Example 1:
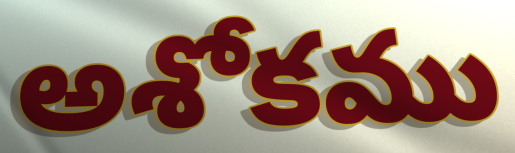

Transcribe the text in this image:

అశోకము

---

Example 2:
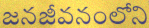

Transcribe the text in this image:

జనజీవనంలోని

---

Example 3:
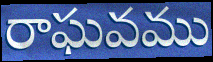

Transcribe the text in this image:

రాఘవము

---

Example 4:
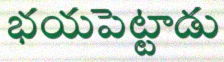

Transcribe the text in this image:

భయపెట్టాడు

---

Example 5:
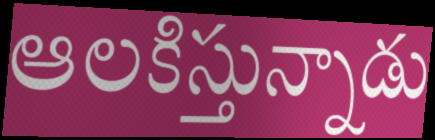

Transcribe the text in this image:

ఆలకిస్తున్నాడు